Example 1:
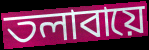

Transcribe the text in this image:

তলাবায়ে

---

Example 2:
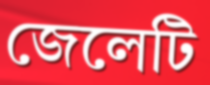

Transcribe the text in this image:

জেলেটি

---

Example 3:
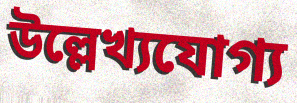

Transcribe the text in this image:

উল্লেখ্যযোগ্য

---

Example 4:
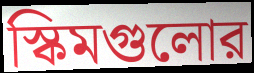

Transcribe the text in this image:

স্কিমগুলোর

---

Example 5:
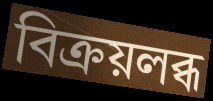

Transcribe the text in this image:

বিক্রয়লব্ধ